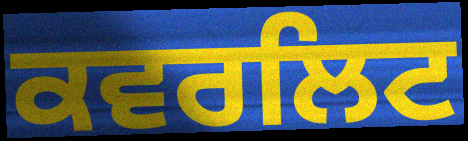
ਕਵਰਲਿਟ